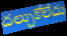
దల్చుకోలేదు